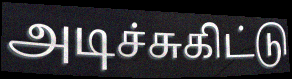
அடிச்சுகிட்டு